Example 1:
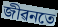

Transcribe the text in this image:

জীৱনতে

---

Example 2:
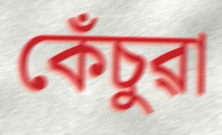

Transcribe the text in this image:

কেঁচুৱা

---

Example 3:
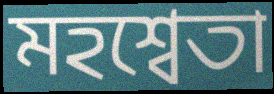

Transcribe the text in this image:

মহশ্বেতা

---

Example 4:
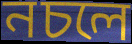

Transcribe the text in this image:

নচলে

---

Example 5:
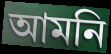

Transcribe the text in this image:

আমনি